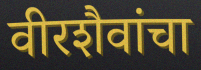
वीरशैवांचा